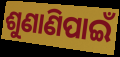
ଶୁଣାଣିପାଇଁ